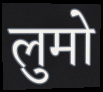
लुमो